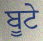
ਬੂਟੇ